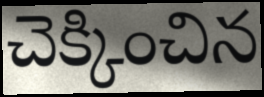
చెక్కించిన